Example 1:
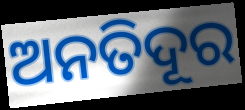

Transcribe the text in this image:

ଅନତିଦୂର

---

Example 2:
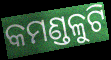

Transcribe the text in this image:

କମଣ୍ଡଳୁଟି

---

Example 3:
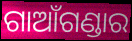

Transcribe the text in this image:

ଗାଆଁଗଣ୍ଡାର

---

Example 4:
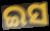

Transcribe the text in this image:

ଇସ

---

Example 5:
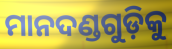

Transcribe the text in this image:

ମାନଦଣ୍ଡଗୁଡ଼ିକୁ